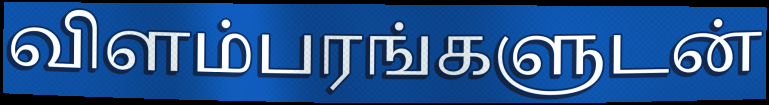
விளம்பரங்களுடன்